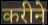
करीने